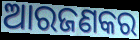
ଆରଜଣକର